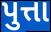
પુત્તા